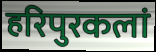
हरिपुरकलां